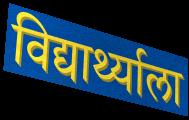
विद्यार्थ्याला